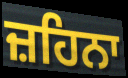
ਜ਼ਹਿਨਾ